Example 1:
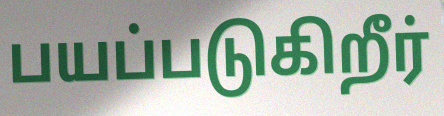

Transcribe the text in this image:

பயப்படுகிறீர்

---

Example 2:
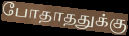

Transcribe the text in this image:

போதாததுக்கு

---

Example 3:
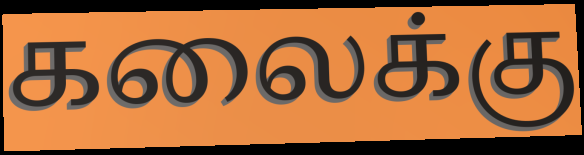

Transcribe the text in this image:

கலைக்கு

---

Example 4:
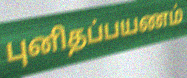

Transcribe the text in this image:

புனிதப்பயணம்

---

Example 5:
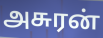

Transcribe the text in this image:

அசுரன்